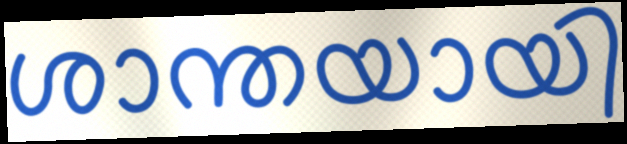
ശാന്തയായി